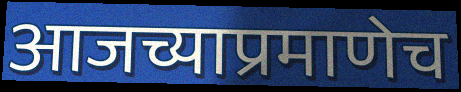
आजच्याप्रमाणेच